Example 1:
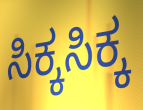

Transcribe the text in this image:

ಸಿಕ್ಕಸಿಕ್ಕ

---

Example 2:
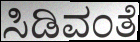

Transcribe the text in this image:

ಸಿಡಿವಂತೆ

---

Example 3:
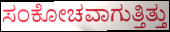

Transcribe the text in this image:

ಸಂಕೋಚವಾಗುತ್ತಿತ್ತು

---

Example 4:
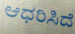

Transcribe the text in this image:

ಆಧರಿಸಿದೆ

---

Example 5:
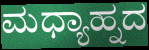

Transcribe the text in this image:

ಮಧ್ಯಾಹ್ನದ